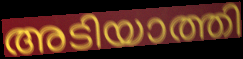
അടിയാത്തി